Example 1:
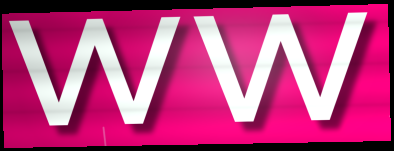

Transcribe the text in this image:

ww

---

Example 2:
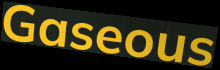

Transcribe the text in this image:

Gaseous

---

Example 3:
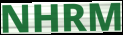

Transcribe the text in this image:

NHRM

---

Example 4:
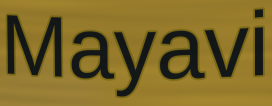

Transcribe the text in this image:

Mayavi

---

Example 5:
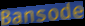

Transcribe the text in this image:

Bansode